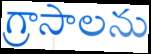
గ్రాసాలను